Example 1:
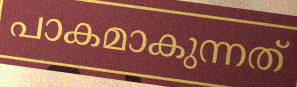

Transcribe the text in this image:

പാകമാകുന്നത്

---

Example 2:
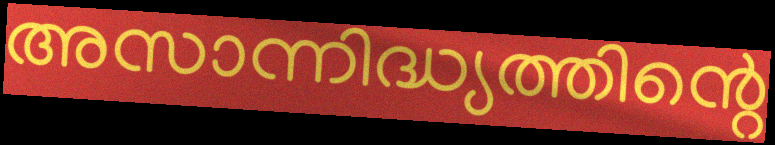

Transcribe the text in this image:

അസാന്നിദ്ധ്യത്തിന്റെ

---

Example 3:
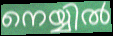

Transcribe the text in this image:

നെയ്യിൽ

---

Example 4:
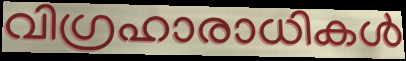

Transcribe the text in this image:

വിഗ്രഹാരാധികൾ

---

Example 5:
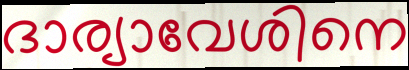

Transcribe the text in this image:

ദാര്യാവേശിനെ